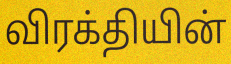
விரக்தியின்